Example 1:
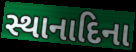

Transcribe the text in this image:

સ્થાનાદિના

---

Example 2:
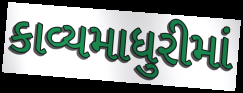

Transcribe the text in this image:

કાવ્યમાધુરીમાં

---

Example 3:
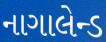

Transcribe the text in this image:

નાગાલેન્ડ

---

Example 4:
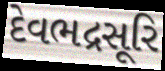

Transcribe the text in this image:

દેવભદ્રસૂરિ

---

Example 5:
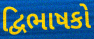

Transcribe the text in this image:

દ્વિભાષકો